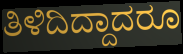
ತಿಳಿದಿದ್ದಾದರೂ